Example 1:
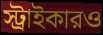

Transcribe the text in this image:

স্ট্রাইকারও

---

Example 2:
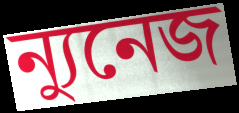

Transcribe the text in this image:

ন্যুনেজ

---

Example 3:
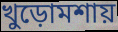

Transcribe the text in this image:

খুড়োমশায়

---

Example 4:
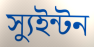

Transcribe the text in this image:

স্যুইন্টন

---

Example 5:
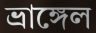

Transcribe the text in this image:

ভ্রাঙ্গেল